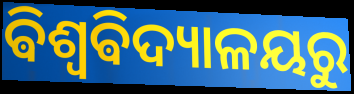
ଵିଶ୍ୱଵିଦ୍ୟାଳୟରୁ